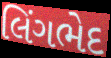
લિંગભેદ